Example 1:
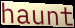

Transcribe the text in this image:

haunt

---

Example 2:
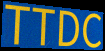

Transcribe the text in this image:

TTDC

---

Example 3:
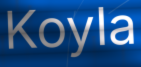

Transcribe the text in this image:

Koyla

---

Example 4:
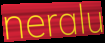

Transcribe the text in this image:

neralu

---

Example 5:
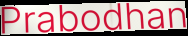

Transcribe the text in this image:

Prabodhan